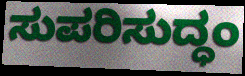
ಸುಪರಿಸುದ್ಧಂ